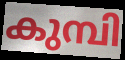
കുമ്പി